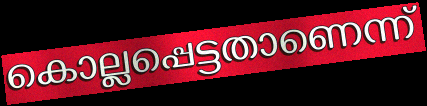
കൊല്ലപ്പെട്ടതാണെന്ന്